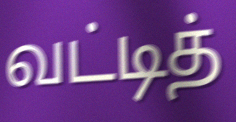
வட்டித்